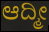
ಆದ್ಮೀ